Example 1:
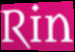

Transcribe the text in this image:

Rin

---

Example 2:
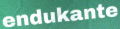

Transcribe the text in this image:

endukante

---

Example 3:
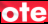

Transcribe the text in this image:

ote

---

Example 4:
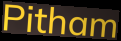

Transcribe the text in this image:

Pitham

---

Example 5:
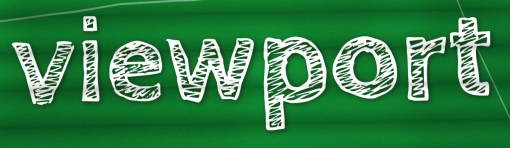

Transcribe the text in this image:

viewport